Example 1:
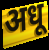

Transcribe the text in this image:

अधू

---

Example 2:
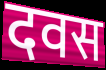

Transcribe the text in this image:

दवस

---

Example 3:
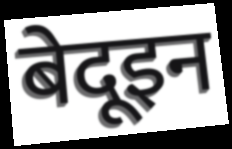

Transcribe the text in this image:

बेदूइन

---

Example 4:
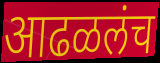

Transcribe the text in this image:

आढळलंच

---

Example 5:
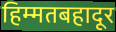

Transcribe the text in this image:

हिम्मतबहादूर